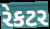
રેકટર